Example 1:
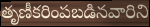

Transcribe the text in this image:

తృణీకరింపబడినవారిని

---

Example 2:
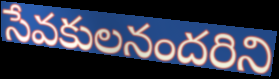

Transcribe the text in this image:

సేవకులనందరిని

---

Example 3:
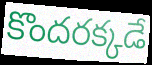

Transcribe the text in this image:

కొందరక్కడే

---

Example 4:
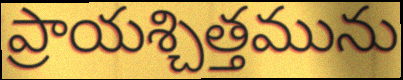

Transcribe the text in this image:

ప్రాయశ్చిత్తమును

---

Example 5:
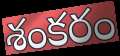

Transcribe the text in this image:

శంకరం